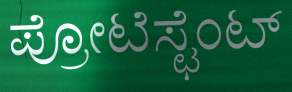
ಪ್ರೋಟೆಸ್ಟೆಂಟ್